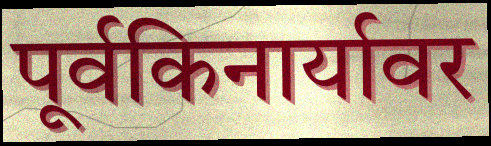
पूर्वकिनार्यावर